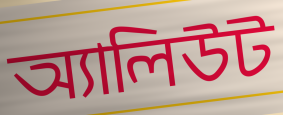
অ্যালিউট